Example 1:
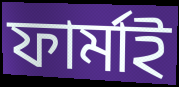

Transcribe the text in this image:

ফাৰ্মাই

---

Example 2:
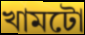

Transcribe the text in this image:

খামটো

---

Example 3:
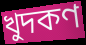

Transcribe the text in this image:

খুদকণ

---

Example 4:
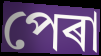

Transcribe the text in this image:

পেৰা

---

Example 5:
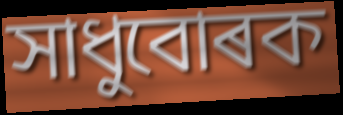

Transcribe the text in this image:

সাধুবোৰক